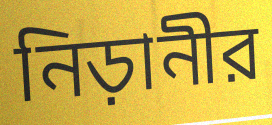
নিড়ানীর